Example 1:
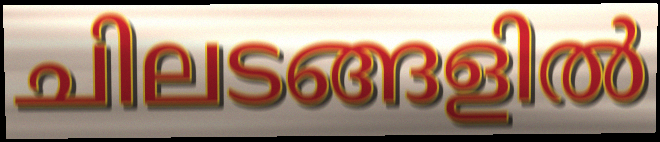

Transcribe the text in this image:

ചിലടങ്ങളിൽ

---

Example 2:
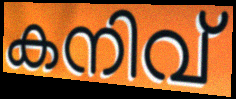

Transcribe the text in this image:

കനിവ്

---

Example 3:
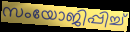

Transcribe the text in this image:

സംയോജിപ്പിച്ച്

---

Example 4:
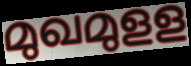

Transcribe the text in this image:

മുഖമുളള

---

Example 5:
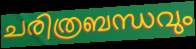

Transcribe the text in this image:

ചരിത്രബന്ധവും